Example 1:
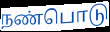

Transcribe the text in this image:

நண்பொடு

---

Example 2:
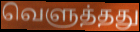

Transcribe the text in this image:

வெளுத்தது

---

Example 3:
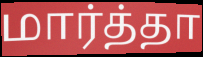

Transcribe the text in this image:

மார்த்தா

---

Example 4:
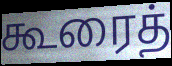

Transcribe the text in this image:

கூரைத்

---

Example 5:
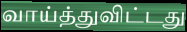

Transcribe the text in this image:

வாய்த்துவிட்டது